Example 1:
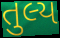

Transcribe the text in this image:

તુલ્ય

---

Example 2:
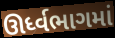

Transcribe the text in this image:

ઊર્ધ્વભાગમાં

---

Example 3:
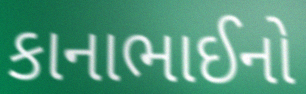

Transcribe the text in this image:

કાનાભાઈનો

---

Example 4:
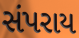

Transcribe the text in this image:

સંપરાય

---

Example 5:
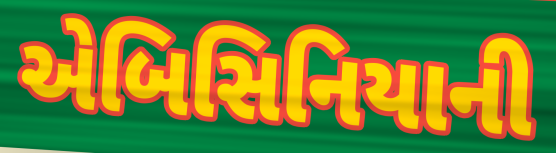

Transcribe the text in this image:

એબિસિનિયાની